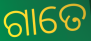
ଗାତେ